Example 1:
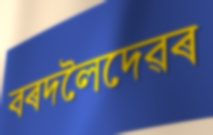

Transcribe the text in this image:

বৰদলৈদেৱৰ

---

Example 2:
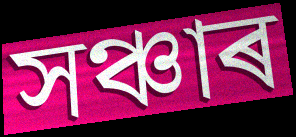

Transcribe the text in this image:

সঞ্চাৰ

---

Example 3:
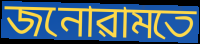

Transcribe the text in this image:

জনোৱামতে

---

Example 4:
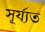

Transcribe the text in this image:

সূৰ্য্যত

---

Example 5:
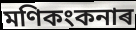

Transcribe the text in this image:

মণিকংকনাৰ